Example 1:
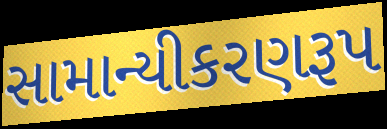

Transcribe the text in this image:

સામાન્યીકરણરૂપ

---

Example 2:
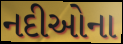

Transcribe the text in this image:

નદીઓના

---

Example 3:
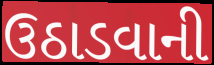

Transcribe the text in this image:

ઉઠાડવાની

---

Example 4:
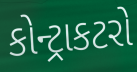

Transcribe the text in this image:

કોન્ટ્રાકટરો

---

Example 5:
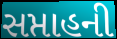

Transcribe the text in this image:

સપ્તાહની